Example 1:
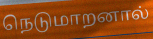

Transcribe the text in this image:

நெடுமாறனால்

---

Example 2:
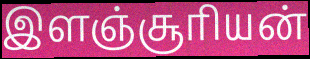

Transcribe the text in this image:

இளஞ்சூரியன்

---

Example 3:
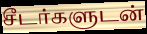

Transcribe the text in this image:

சீடர்களுடன்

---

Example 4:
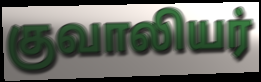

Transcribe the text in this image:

குவாலியர்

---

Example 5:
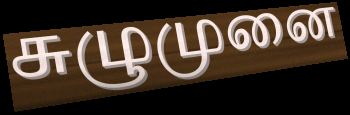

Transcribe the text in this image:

சுழுமுனை